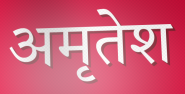
अमृतेश